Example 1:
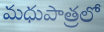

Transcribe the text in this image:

మధుపాత్రలో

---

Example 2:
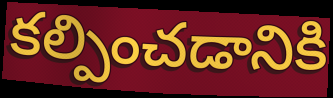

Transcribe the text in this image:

కల్పించడానికి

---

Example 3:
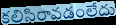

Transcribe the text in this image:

కలిసిరావడంలేదు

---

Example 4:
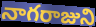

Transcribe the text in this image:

నాగరాజుని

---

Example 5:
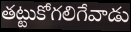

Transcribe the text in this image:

తట్టుకోగలిగేవాడు